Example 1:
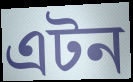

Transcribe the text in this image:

এটন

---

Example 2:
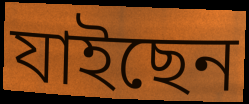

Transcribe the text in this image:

যাইছেন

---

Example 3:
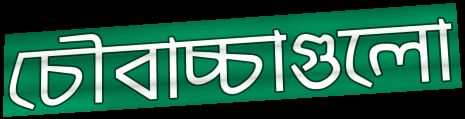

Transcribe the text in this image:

চৌবাচ্চাগুলো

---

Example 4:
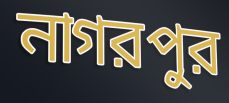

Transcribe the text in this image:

নাগরপুর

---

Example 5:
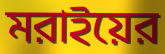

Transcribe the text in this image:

মরাইয়ের